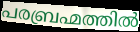
പരബ്രഹ്മത്തിൽ